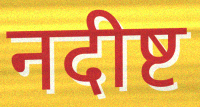
नदीष्ट